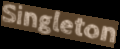
Singleton